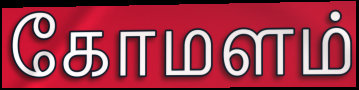
கோமளம்